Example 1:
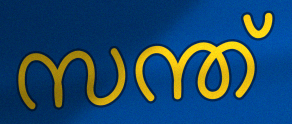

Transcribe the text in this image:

സന്ത്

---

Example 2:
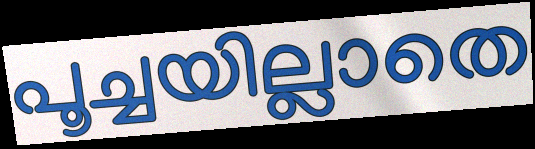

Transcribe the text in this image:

പൂച്ചയില്ലാതെ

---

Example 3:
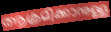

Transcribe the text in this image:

ആക്രമിക്കാനുള്ള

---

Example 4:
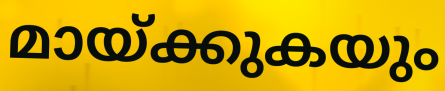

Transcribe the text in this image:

മായ്ക്കുകയും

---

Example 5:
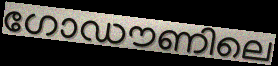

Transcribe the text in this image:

ഗോഡൗണിലെ